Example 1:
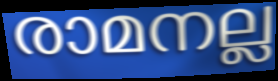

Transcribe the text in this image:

രാമനല്ല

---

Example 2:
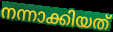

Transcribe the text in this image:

നന്നാക്കിയത്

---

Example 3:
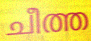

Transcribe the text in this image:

ചീത്ത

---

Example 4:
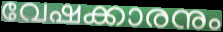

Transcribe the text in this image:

വേഷക്കാരനും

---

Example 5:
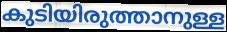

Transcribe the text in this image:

കുടിയിരുത്താനുള്ള